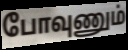
போவுணும்